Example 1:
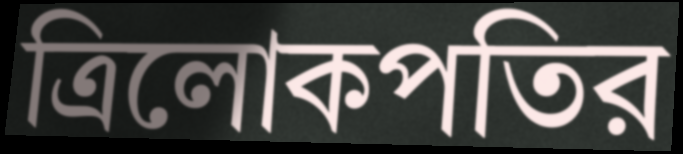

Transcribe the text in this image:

ত্রিলোকপতির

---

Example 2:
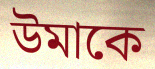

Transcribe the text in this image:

উমাকে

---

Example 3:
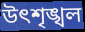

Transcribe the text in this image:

উৎশৃঙ্খল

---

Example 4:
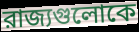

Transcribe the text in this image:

রাজ্যগুলোকে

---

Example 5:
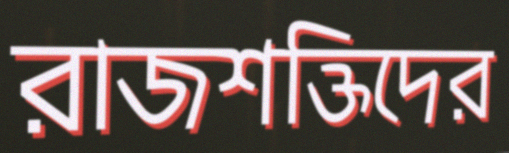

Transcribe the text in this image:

রাজশক্তিদের